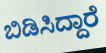
ಬಿಡಿಸಿದ್ದಾರೆ